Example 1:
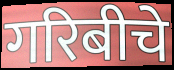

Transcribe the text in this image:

गरिबीचे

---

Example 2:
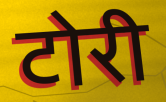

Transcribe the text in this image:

टोरी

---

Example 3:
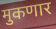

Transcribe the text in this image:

मुकणार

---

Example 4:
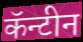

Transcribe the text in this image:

कॅन्टीन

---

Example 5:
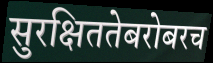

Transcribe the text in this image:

सुरक्षिततेबरोबरच